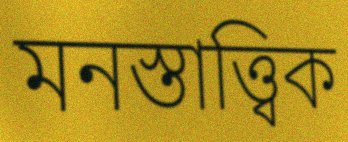
মনস্তাত্ত্বিক